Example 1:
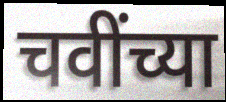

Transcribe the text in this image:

चवींच्या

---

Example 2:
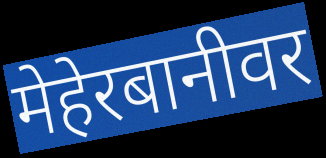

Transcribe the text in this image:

मेहेरबानीवर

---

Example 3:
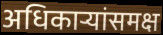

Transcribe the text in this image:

अधिकाऱ्यांसमक्ष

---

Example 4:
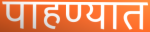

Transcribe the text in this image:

पाहण्यात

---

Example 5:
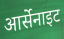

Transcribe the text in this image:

आर्सेनाइट